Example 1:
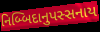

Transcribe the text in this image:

નિબ્બિદાનુપસ્સનાય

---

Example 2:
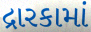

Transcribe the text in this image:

દ્રારકામાં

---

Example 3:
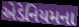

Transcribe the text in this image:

એડેનિયમના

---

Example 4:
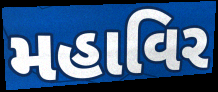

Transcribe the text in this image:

મહાવિર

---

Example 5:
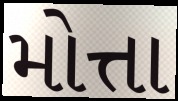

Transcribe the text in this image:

મોત્તા